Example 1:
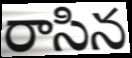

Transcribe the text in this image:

రాసిన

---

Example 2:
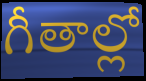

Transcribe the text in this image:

గీతాల్లో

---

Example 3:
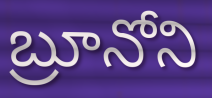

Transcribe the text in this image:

బ్రూనోని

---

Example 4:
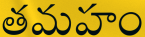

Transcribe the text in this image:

తమహం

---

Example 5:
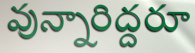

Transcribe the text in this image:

వున్నారిద్దరూ